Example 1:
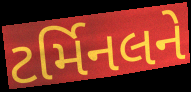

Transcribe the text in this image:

ટર્મિનલને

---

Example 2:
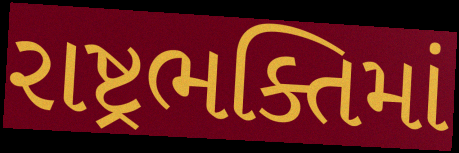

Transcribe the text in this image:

રાષ્ટ્રભક્તિમાં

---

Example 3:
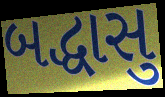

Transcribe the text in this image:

બદ્ધાસુ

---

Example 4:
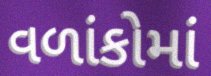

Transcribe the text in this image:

વળાંકોમાં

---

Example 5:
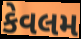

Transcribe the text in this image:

કેવલમ